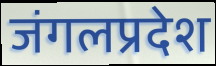
जंगलप्रदेश